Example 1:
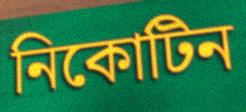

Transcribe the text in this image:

নিকোটিন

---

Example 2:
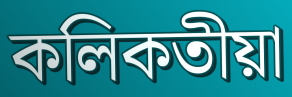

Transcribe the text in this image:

কলিকতীয়া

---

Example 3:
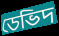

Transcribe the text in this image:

ডেভিদ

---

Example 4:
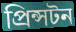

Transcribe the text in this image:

প্ৰিন্সটন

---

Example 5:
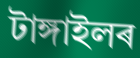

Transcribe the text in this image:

টাঙ্গাইলৰ